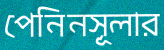
পেনিনসূলার